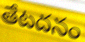
తేటదనం